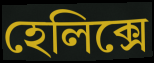
হেলিক্সে